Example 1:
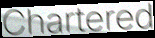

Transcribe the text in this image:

Chartered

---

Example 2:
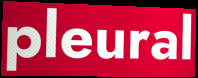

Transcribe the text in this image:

pleural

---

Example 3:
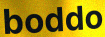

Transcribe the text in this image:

boddo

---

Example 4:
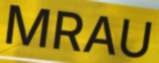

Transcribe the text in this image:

MRAU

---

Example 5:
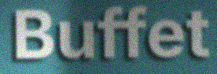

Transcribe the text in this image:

Buffet